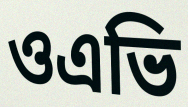
ওএভি